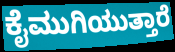
ಕೈಮುಗಿಯುತ್ತಾರೆ